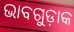
ଭାବଗୁଡ଼ାକ